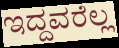
ಇದ್ದವರೆಲ್ಲ